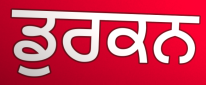
ਡੁਰਕਨ